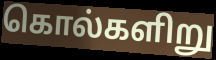
கொல்களிறு